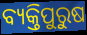
ବ୍ୟକ୍ତିପୁରୁଷ